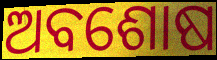
ଅବଶୋଷ